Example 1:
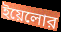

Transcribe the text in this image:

ইয়েলোর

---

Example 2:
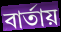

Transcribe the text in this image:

বার্তায়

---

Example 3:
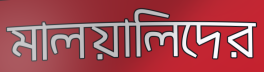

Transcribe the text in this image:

মালয়ালিদের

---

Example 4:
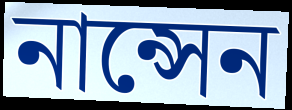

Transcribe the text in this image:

নান্সেন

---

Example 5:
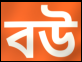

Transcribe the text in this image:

বউ